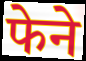
फेने